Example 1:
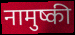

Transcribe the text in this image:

नामुष्की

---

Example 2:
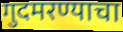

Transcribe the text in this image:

गुदमरण्याचा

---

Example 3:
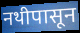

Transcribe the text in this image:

नथीपासून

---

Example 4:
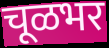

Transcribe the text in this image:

चूळभर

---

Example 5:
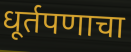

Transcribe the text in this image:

धूर्तपणाचा